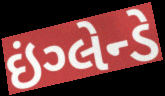
ઇંગ્લેન્ડે